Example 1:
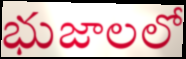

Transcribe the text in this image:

భుజాలలో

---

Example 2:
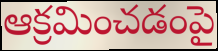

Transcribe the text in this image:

ఆక్రమించడంపై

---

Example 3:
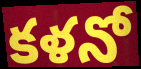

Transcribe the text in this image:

కళనో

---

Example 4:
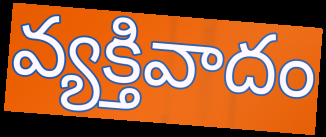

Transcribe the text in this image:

వ్యక్తివాదం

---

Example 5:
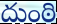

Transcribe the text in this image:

దుంఠి